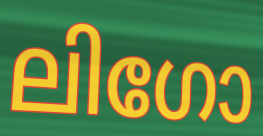
ലിഗോ